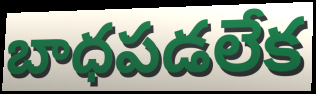
బాధపడలేక